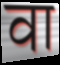
वा